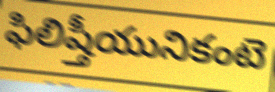
ఫిలిష్తీయునికంటె